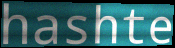
hashte